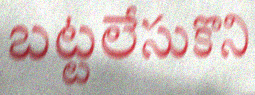
బట్టలేసుకొని